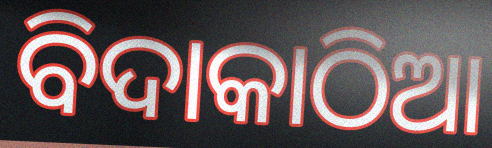
ବିଦାକାଠିଆ